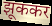
झूककर